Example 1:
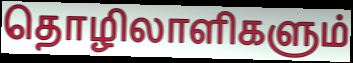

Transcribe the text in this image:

தொழிலாளிகளும்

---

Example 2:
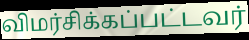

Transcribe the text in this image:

விமர்சிக்கப்பட்டவர்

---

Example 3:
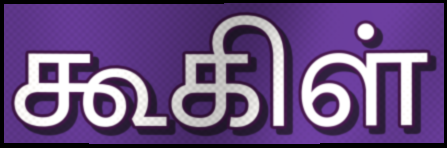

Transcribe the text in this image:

கூகிள்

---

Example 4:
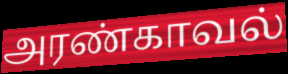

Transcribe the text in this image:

அரண்காவல்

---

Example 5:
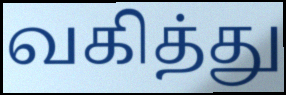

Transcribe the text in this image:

வகித்து